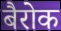
बैरोक